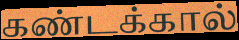
கண்டக்கால்